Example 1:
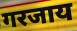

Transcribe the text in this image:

गरजाय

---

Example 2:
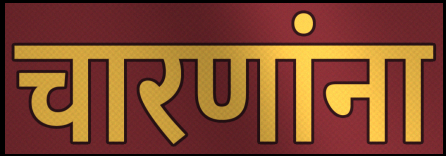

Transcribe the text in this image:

चारणांना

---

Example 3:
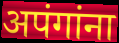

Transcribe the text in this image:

अपंगांना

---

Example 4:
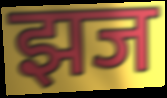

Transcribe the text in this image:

झज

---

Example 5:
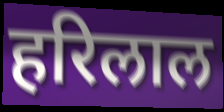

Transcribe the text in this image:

हरिलाल